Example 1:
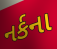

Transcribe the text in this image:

નર્કના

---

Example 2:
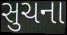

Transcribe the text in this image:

સુચના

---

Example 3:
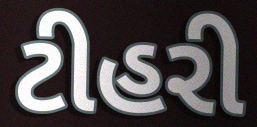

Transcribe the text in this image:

ટીહરી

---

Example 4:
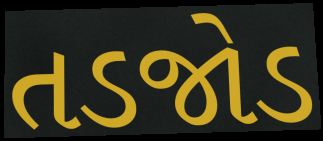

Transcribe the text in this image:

તડજોડ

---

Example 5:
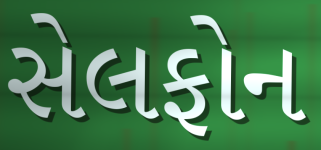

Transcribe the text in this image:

સેલફોન